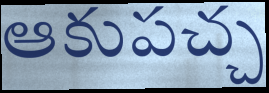
ఆకుపచ్చ